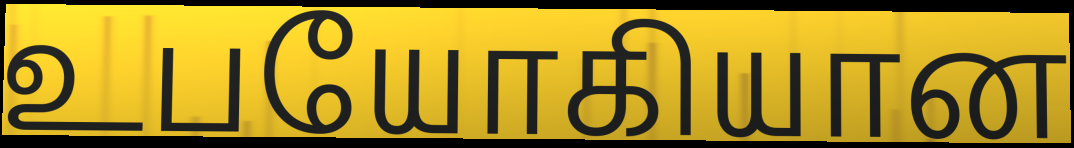
உபயோகியான